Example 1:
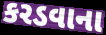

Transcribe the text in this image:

કરડવાના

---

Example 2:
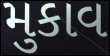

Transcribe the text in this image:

મુકાવ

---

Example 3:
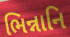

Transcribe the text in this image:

ભિન્નાનિ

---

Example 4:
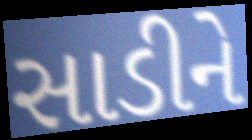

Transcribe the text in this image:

સાડીને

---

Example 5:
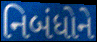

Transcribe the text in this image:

નિબંધોને